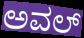
ಅವಲ್